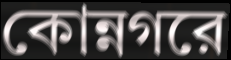
কোন্নগরে